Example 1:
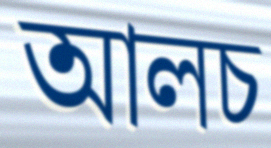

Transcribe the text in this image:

আলচ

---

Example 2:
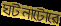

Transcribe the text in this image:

ঘটনাটোৱে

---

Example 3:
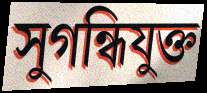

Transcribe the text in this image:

সুগন্ধিযুক্ত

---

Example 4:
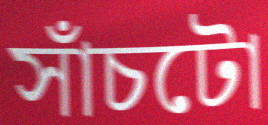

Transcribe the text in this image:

সাঁচটো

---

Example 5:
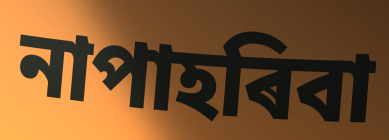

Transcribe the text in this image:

নাপাহৰিবা